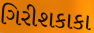
ગિરીશકાકા